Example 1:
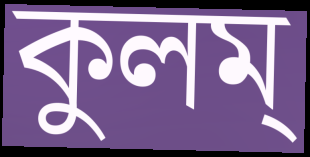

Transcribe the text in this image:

কুলম্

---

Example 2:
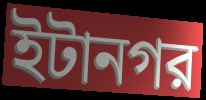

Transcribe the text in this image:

ইটানগর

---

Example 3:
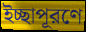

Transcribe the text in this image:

ইচ্ছাপূরণে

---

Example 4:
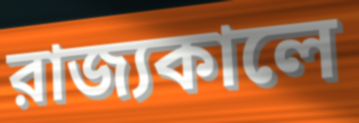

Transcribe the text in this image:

রাজ্যকালে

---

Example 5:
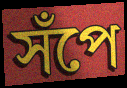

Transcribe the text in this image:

সঁপে